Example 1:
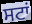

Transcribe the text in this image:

ਸਟਾਂ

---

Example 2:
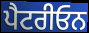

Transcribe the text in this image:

ਪੈਟਰੀਓਨ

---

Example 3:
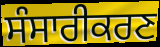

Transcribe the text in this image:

ਸੰਸਾਰੀਕਰਣ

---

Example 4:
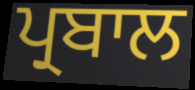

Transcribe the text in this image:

ਪ੍ਰਬਾਲ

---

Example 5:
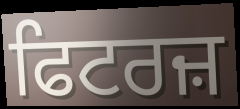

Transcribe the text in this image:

ਫਿਟਰਜ਼